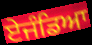
ਏਜੰਡਿਆ